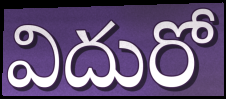
విదురో